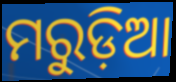
ମରୁଡ଼ିଆ